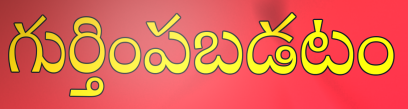
గుర్తింపబడటం